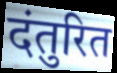
दंतुरित